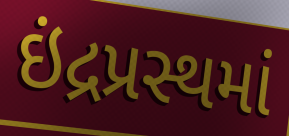
ઇંદ્રપ્રસ્થમાં